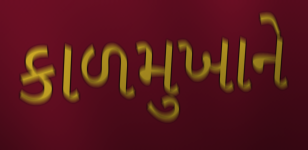
કાળમુખાને